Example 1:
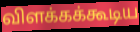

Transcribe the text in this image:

விளக்கக்கூடிய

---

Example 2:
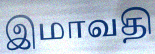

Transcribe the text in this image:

இமாவதி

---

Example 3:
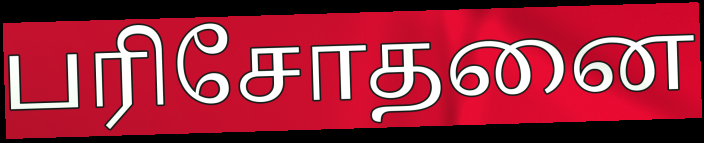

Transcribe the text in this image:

பரிசோதனை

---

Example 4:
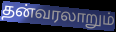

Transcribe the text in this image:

தன்வரலாறும்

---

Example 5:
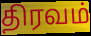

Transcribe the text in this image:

திரவம்